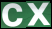
cx